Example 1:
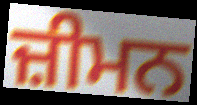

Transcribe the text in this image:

ਜ਼ੀਮਨ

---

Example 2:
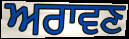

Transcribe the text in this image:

ਅਰਾਵਣ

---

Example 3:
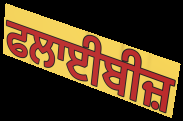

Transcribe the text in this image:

ਫਲਾਈਬੀਜ਼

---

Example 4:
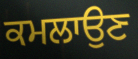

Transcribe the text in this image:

ਕਮਲਾਉਣ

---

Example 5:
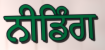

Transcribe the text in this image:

ਨੀਡਿੰਗ